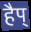
हैप्